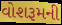
વોશરૂમની